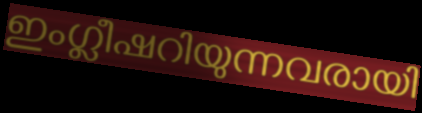
ഇംഗ്ലീഷറിയുന്നവരായി